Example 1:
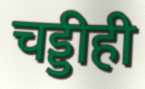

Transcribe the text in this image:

चड्डीही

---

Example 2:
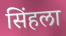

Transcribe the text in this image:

सिंहला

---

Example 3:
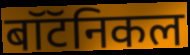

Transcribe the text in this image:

बॉटॅनिकल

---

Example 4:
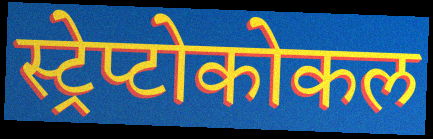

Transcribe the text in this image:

स्ट्रेप्टोकोकल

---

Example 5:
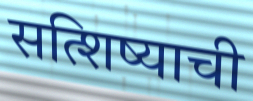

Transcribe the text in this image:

सत्शिष्याची